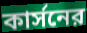
কার্সনের